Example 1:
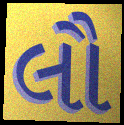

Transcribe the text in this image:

લૌ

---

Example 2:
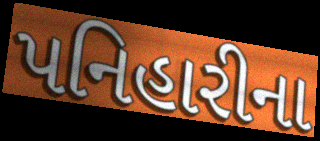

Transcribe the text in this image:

પનિહારીના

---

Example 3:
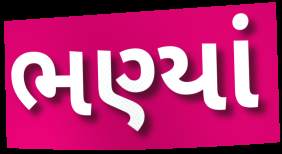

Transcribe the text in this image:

ભણ્યાં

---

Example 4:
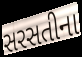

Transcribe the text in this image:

સરસતીના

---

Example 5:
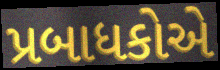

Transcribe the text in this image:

પ્રબાધકોએ